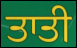
ਤਾਤੀ